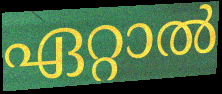
ഏറ്റാൽ